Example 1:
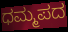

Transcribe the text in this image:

ಧಮ್ಮಪದ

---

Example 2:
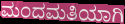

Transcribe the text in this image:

ಮಂದಮತಿಯಾಗಿ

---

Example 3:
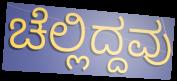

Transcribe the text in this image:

ಚೆಲ್ಲಿದ್ದವು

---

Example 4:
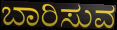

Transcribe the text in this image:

ಬಾರಿಸುವ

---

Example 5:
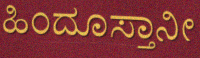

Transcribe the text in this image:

ಹಿಂದೂಸ್ತಾನೀ